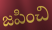
జపించి